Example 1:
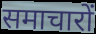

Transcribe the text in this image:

समाचारों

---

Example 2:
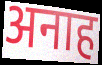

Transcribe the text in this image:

अनाह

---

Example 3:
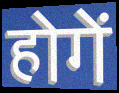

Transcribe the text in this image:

होगें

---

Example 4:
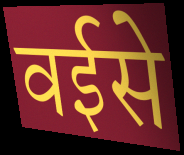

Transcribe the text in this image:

वईसे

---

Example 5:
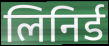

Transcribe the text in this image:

लिनिर्ड